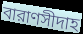
বারাণসীদাহ